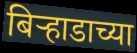
बिऱ्हाडाच्या